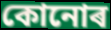
কোনোৰ